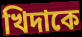
খিদাকে